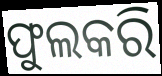
ଫୁଲକରି